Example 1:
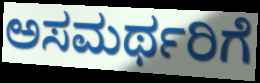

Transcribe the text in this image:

ಅಸಮರ್ಥರಿಗೆ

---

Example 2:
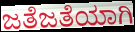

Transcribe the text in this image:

ಜತೆಜತೆಯಾಗಿ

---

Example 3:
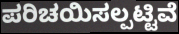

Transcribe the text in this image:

ಪರಿಚಯಿಸಲ್ಪಟ್ಟಿವೆ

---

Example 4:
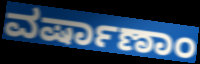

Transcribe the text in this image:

ವರ್ಷಾಣಾಂ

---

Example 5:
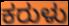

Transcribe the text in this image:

ಕರುಳು